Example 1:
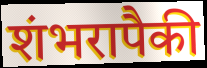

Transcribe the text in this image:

शंभरापैकी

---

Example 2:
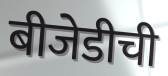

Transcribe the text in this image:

बीजेडीची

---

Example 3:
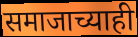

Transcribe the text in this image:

समाजाच्याही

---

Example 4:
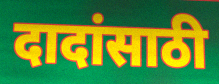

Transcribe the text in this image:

दादांसाठी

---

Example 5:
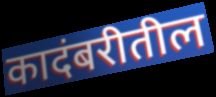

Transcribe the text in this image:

कादंबरीतील